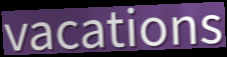
vacations